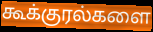
கூக்குரல்களை